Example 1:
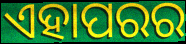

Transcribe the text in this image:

ଏହାପରର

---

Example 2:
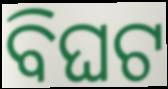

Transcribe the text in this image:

ବିଘଟ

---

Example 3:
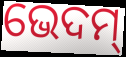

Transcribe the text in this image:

ଭେଦମ୍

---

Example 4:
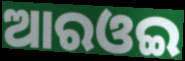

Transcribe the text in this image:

ଆରଓଇ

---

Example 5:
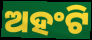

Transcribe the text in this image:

ଅହଂଟି